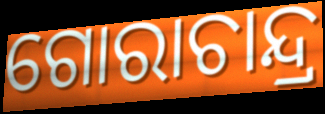
ଗୋରାଚାନ୍ଦ୍ର